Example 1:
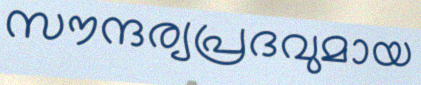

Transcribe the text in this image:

സൗന്ദര്യപ്രദവുമായ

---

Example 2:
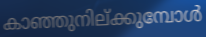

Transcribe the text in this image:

കാഞ്ഞുനില്ക്കുമ്പോൾ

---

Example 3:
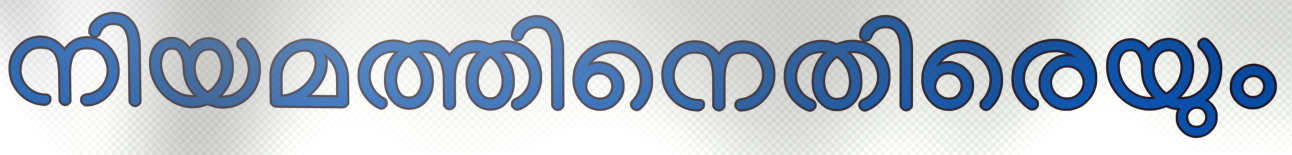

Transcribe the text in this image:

നിയമത്തിനെതിരെയും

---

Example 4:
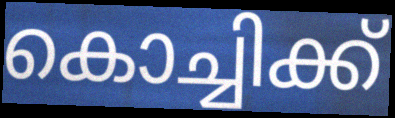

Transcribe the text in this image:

കൊച്ചിക്ക്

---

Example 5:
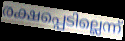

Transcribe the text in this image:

രക്ഷപ്പെടില്ലെന്ന്